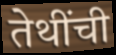
तेथींची